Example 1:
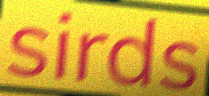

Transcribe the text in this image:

sirds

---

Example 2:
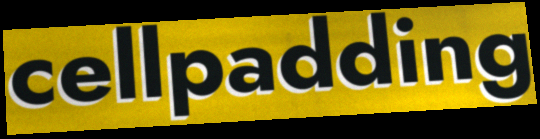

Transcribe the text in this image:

cellpadding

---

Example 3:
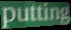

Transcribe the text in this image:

putting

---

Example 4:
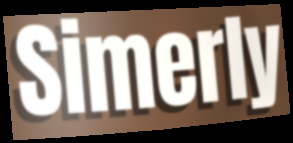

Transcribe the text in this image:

Simerly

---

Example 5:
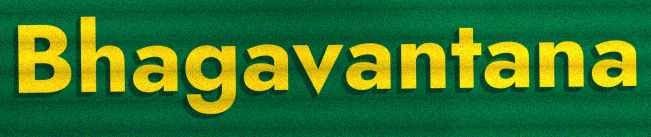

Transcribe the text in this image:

Bhagavantana